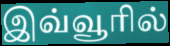
இவ்வூரில்